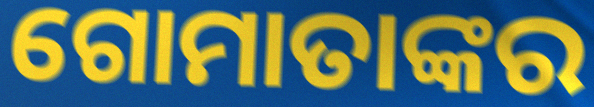
ଗୋମାତାଙ୍କର